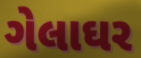
ગેલાઘર